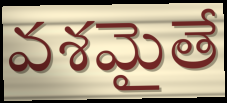
వశమైతే